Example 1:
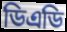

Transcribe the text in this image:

ডিএডি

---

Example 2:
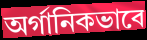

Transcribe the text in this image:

অর্গানিকভাবে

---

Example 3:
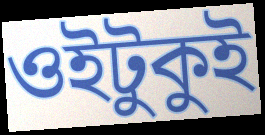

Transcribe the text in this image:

ওইটুকুই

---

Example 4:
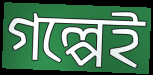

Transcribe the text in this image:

গল্পেই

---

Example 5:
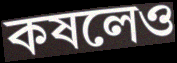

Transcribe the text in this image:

কষলেও